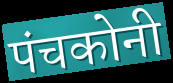
पंचकोनी